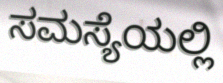
ಸಮಸ್ಯೆಯಲ್ಲಿ